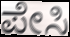
ಪೇಸಿ